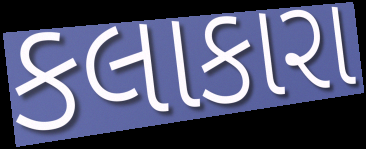
કલાકારા